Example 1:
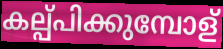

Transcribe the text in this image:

കല്പ്പിക്കുമ്പോള്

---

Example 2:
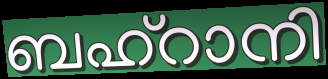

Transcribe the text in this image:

ബഹ്റാനി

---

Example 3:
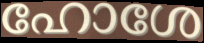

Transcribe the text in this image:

ഹോശേ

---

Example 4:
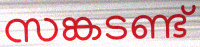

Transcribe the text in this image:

സങ്കടണ്ട്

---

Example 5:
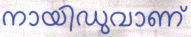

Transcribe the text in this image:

നായിഡുവാണ്